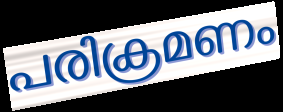
പരിക്രമണം